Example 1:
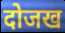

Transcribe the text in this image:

दोजख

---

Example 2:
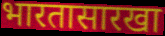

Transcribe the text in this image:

भारतासारखा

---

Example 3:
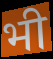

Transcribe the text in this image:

भी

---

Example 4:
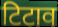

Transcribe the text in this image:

टिटाव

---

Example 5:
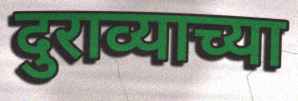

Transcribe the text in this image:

दुराव्याच्या